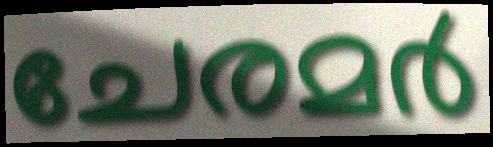
ചേരമർ